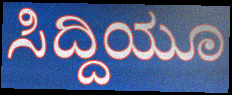
ಸಿದ್ದಿಯೂ